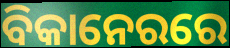
ବିକାନେରରେ